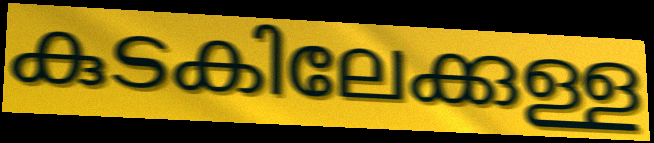
കുടകിലേക്കുള്ള